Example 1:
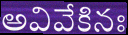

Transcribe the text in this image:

అవివేకినః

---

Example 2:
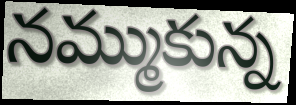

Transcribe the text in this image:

నమ్ముకున్న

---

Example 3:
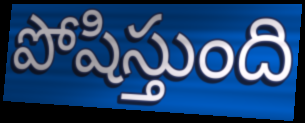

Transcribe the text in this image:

పోషిస్తుంది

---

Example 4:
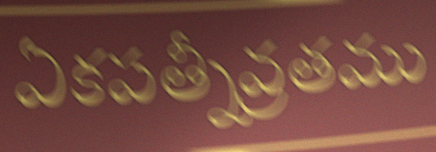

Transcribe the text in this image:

ఏకపత్నీవ్రతము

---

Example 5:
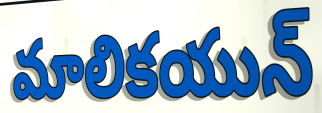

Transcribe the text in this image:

మాలికయున్